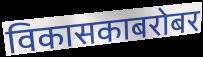
विकासकाबरोबर